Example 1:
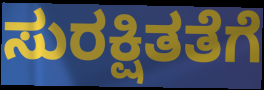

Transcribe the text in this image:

ಸುರಕ್ಷಿತತೆಗೆ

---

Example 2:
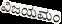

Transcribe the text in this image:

ವಿಜಯಮಂ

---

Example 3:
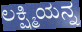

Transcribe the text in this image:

ಲಕ್ಷ್ಮಿಯನ್ನ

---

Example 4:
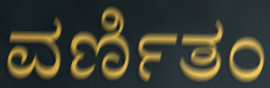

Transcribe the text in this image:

ವರ್ಣಿತಂ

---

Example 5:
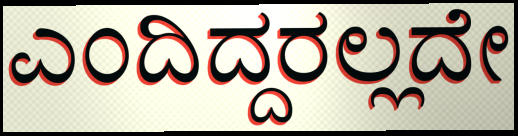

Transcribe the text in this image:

ಎಂದಿದ್ದರಲ್ಲದೇ